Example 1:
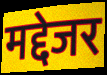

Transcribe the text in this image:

मद्देजर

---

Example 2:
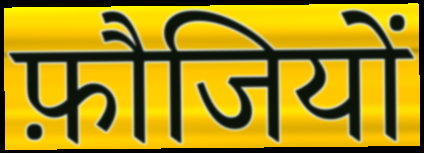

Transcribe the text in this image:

फ़ौजियों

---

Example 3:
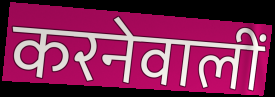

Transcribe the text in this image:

करनेवालीं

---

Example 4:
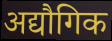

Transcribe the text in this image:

अद्यौगिक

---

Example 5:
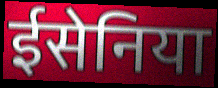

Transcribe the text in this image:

ईसेनिया